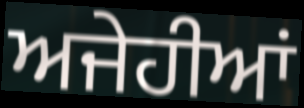
ਅਜੇਹੀਆਂ